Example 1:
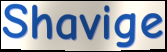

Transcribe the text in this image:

Shavige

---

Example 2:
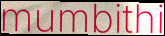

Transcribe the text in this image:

mumbithi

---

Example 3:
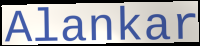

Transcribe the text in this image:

Alankar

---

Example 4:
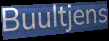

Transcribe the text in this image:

Buultjens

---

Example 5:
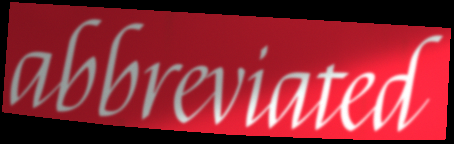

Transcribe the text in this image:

abbreviated